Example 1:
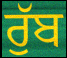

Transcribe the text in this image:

ਰੁੱਬ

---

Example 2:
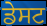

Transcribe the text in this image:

ਡੇਸਟ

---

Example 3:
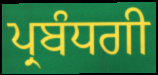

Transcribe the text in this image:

ਪ੍ਰਬੰਧਗੀ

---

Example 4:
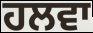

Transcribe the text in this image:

ਹਲਵਾ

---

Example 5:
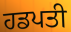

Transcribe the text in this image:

ਹਡਪਤੀ